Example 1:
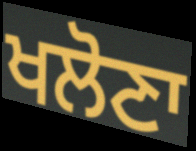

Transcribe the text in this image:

ਖਲੋਣਾ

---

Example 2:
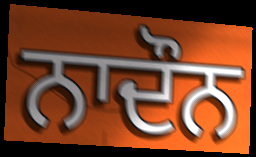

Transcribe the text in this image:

ਨਾਦੌਨ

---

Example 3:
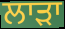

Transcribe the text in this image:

ਲਾੜਾ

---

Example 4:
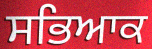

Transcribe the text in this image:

ਸਭਿਆਕ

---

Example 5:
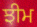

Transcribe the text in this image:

ਝੀਮ